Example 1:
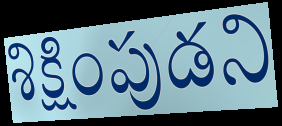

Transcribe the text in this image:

శిక్షింపుడని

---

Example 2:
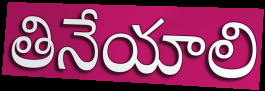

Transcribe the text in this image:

తినేయాలి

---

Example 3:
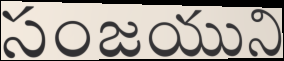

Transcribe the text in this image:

సంజయుని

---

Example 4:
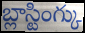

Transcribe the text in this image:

బ్లాస్టింగ్కు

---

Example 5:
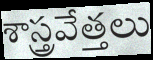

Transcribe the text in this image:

శాస్త్రవేత్తలు